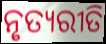
ନୃତ୍ୟରୀତି